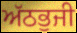
ਅੱਠਭੁਜੀ